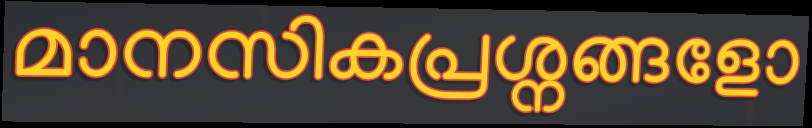
മാനസികപ്രശ്നങ്ങളോ